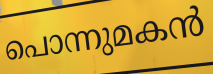
പൊന്നുമകൻ